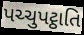
પચ્ચુપટ્ઠાતિ